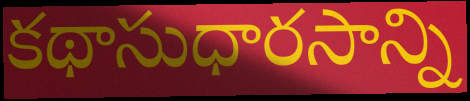
కథాసుధారసాన్ని